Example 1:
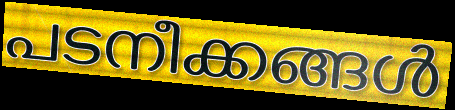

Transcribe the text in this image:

പടനീക്കങ്ങൾ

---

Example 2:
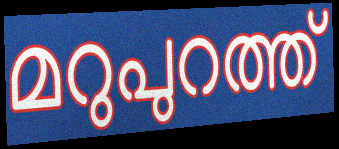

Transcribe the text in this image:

മറുപുറത്ത്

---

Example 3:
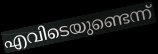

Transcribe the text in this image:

എവിടെയുണ്ടെന്ന്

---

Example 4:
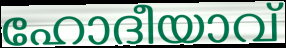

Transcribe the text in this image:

ഹോദീയാവ്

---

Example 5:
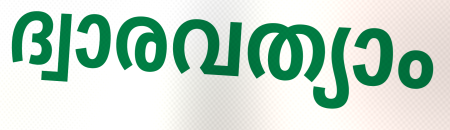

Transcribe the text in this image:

ദ്വാരവത്യാം